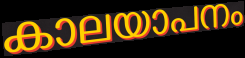
കാലയാപനം